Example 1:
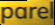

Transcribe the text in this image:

parel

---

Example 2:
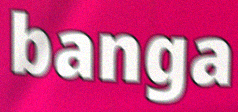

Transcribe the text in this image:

banga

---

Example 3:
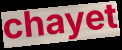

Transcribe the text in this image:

chayet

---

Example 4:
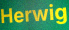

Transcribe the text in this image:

Herwig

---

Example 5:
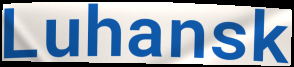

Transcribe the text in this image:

Luhansk